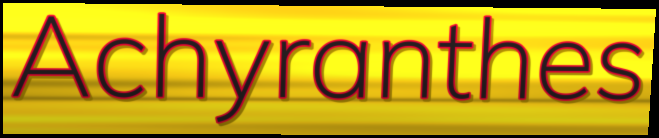
Achyranthes